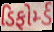
ડિફોર્મ્ડ